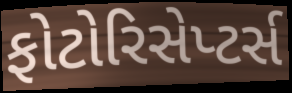
ફોટોરિસેપ્ટર્સ